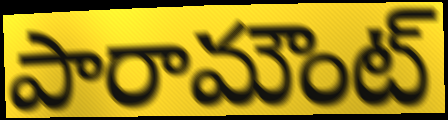
పారామౌంట్